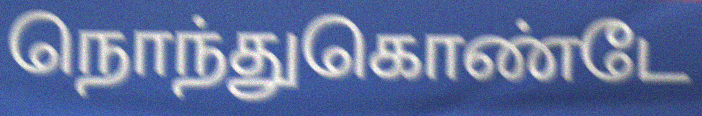
நொந்துகொண்டே